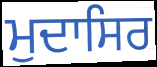
ਮੁਦਾਸਿਰ